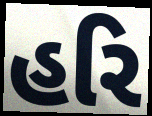
હરિ